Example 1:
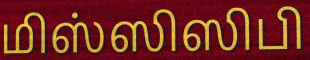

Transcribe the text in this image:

மிஸ்ஸிஸிபி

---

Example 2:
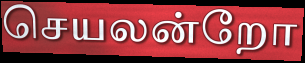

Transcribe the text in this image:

செயலன்றோ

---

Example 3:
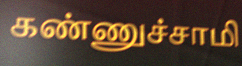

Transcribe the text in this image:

கண்ணுச்சாமி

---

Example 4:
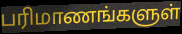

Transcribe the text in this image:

பரிமாணங்களுள்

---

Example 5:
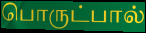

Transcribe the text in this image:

பொருட்பால்